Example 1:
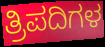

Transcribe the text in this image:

ತ್ರಿಪದಿಗಳ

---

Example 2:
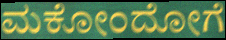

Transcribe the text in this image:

ಮಕೋಂದೋಗೆ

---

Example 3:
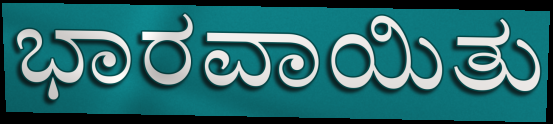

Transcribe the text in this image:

ಭಾರವಾಯಿತು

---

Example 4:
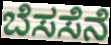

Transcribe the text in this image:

ಬೆಸಸೆನೆ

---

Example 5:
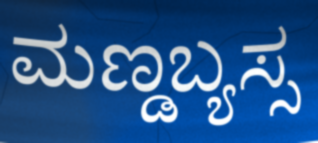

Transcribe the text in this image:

ಮಣ್ಡಬ್ಯಸ್ಸ